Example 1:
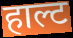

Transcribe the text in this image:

हाल्ट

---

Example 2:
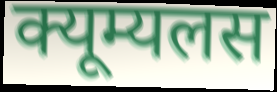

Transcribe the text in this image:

क्यूम्यलस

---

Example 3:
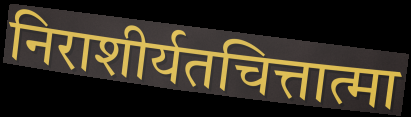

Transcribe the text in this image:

निराशीर्यतचित्तात्मा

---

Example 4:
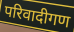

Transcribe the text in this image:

परिवादीगण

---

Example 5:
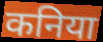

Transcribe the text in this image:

कनिया